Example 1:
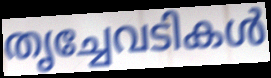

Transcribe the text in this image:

തൃച്ചേവടികൾ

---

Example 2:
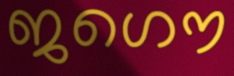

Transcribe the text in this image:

ജഗൌ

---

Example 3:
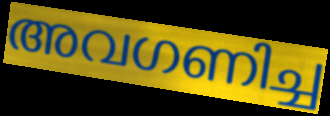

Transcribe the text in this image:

അവഗണിച്ച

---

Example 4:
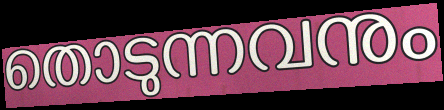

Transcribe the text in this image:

തൊടുന്നവനും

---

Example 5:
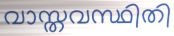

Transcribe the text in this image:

വാസ്തവസ്ഥിതി